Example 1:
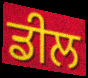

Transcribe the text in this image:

ਡੀਲ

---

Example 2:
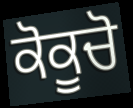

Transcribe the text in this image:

ਕੋਕੂਚੋ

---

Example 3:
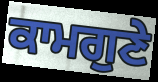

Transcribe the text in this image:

ਕਾਮਗੁਣੇ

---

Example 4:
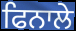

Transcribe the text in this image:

ਫਿਨਾਲੇ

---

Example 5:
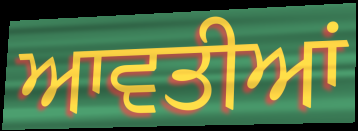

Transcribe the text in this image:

ਆਵਤੀਆਂ